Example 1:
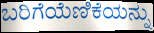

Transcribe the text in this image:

ಬರಿಗೆಯೆಣಿಕೆಯನ್ನು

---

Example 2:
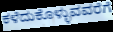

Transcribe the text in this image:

ಕಳೆದುಕೊಳ್ಳುವವರೆಗೆ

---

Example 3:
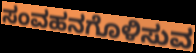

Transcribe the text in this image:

ಸಂವಹನಗೊಳಿಸುವ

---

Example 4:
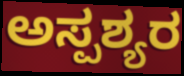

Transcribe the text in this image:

ಅಸ್ಪಶ್ಯರ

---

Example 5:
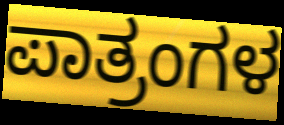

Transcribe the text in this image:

ಪಾತ್ರಂಗಳ